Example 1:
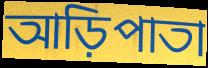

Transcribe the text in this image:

আড়িপাতা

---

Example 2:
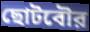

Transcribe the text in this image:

ছোটবৌর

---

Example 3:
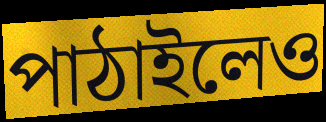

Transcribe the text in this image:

পাঠাইলেও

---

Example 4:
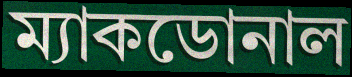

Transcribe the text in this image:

ম্যাকডোনাল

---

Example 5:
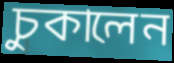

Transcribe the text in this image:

চুকালেন